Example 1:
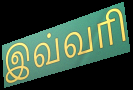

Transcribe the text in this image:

இவ்வரி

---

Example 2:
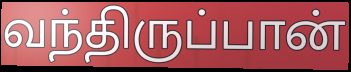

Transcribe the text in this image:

வந்திருப்பான்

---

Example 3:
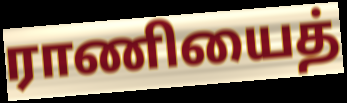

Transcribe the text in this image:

ராணியைத்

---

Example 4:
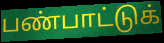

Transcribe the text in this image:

பண்பாட்டுக்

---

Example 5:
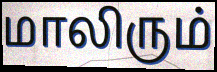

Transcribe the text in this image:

மாலிரும்